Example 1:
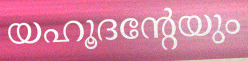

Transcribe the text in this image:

യഹൂദന്റേയും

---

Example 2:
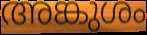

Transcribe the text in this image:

അങ്കുശം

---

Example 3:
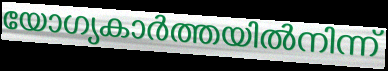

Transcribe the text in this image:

യോഗ്യകാർത്തയിൽനിന്ന്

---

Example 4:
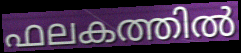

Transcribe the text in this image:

ഫലകത്തിൽ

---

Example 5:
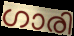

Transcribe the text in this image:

ഗാരി